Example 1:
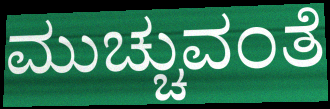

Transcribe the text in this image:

ಮುಚ್ಚುವಂತೆ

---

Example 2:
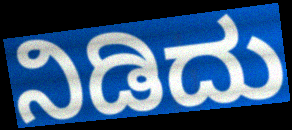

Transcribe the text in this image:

ನಿಡಿದು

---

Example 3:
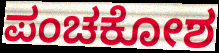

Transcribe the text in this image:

ಪಂಚಕೋಶ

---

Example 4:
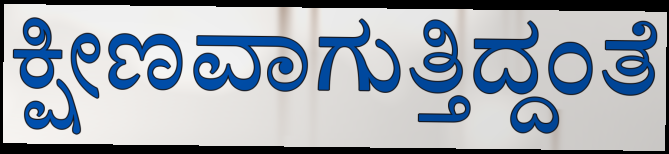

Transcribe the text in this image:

ಕ್ಷೀಣವಾಗುತ್ತಿದ್ದಂತೆ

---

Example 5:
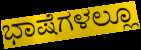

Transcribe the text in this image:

ಭಾಷೆಗಳಲ್ಲೂ